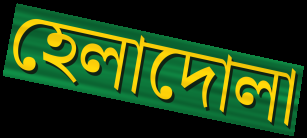
হেলাদোলা